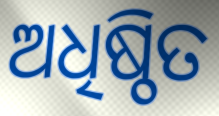
ଅଧିଷ୍ଠିତ